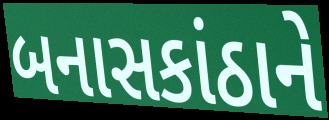
બનાસકાંઠાને